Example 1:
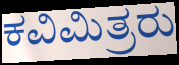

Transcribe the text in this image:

ಕವಿಮಿತ್ರರು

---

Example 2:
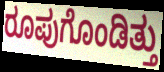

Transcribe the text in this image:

ರೂಪುಗೊಂಡಿತ್ತು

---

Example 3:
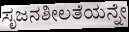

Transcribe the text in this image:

ಸೃಜನಶೀಲತೆಯನ್ನೇ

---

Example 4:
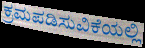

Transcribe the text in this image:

ಕ್ರಮಪಡಿಸುವಿಕೆಯಲ್ಲಿ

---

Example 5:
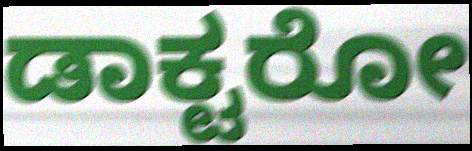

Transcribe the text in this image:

ಡಾಕ್ಟರೋ